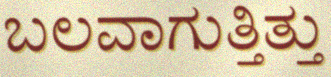
ಬಲವಾಗುತ್ತಿತ್ತು